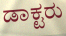
ಡಾಕ್ಟರು